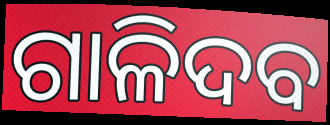
ଗାଳିଦବ